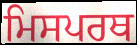
ਮਿਸਪਰਥ